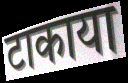
टाकाया